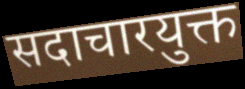
सदाचारयुक्त